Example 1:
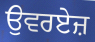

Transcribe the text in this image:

ਉਵਰਏਜ਼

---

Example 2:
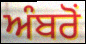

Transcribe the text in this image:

ਅੰਬਰੋਂ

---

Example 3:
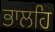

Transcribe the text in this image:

ਭਾਲਹਿ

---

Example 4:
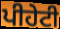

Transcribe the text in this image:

ਪੀਹੇਟੀ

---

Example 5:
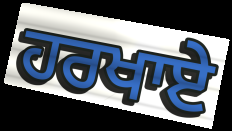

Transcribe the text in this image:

ਹਰਖਾਏ